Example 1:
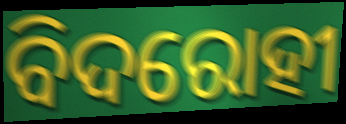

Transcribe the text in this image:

ବିଦରୋହୀ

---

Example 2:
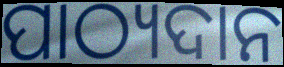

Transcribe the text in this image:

ପାଠ୍ୟଦାନ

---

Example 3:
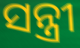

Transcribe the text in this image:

ସନ୍ତ୍ରୀ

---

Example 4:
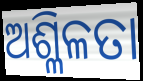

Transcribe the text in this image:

ଅଶ୍ଳିଳତା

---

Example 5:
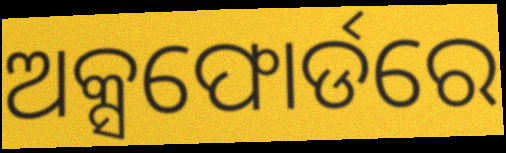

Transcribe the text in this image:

ଅକ୍ସଫୋର୍ଡରେ